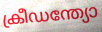
ക്രീഡന്ത്യോ